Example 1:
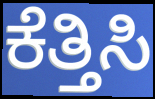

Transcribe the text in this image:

ಕೆತ್ತಿಸಿ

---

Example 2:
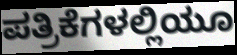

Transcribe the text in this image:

ಪತ್ರಿಕೆಗಳಲ್ಲಿಯೂ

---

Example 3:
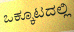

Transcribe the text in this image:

ಒಕ್ಕೂಟದಲ್ಲಿ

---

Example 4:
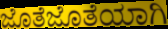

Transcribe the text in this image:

ಜೊತೆಜೊತೆಯಾಗಿ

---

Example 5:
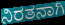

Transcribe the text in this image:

ನಿರತನಾಗಿ